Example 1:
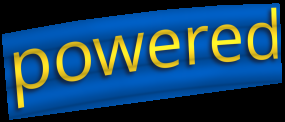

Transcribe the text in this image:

powered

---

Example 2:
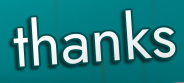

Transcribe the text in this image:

thanks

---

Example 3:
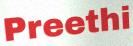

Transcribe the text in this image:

Preethi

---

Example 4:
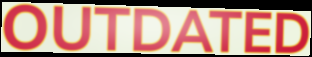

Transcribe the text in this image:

OUTDATED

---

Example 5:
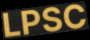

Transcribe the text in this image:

LPSC